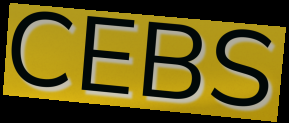
CEBS